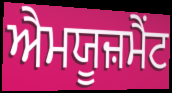
ਐਮਯੂਜ਼ਮੈਂਟ